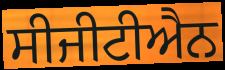
ਸੀਜੀਟੀਐਨ